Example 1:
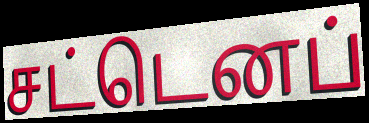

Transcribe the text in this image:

சட்டெனப்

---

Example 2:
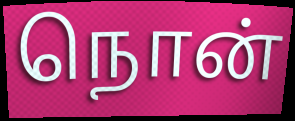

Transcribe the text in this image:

நொன்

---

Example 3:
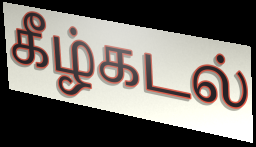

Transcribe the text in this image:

கீழ்கடல்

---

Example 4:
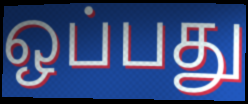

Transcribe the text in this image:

ஒப்பது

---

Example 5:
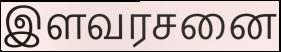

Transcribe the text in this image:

இளவரசனை